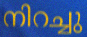
നിറച്ചു